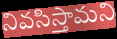
నివసిస్తామని